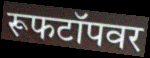
रूफटॉपवर